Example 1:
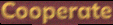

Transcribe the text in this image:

Cooperate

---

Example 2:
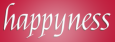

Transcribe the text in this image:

happyness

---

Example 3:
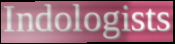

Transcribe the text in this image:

Indologists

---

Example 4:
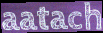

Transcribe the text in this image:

aatach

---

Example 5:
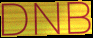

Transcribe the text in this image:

DNB